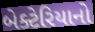
બેક્ટેરિયાનો